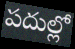
పదుల్లో